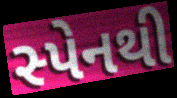
સ્પેનથી